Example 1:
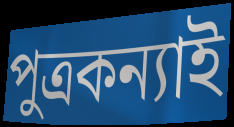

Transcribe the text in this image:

পুত্রকন্যাই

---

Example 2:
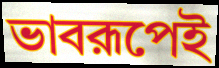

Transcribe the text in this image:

ভাবরূপেই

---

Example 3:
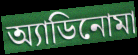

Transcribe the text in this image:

অ্যাডিনোমা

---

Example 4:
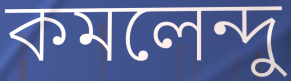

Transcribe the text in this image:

কমলেন্দু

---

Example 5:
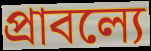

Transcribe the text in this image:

প্রাবল্যে